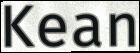
Kean